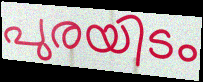
പുരയിടം